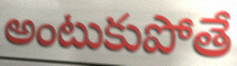
అంటుకుపోతే